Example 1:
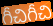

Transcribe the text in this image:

గీచిగీచి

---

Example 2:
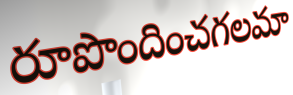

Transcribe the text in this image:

రూపొందించగలమా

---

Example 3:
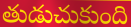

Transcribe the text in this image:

తుడుచుకుంది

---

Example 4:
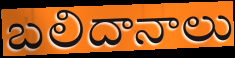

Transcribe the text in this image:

బలిదానాలు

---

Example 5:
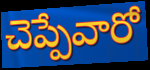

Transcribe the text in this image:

చెప్పేవారో